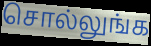
சொல்லுங்க